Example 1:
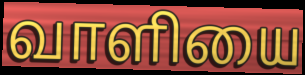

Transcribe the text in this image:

வாளியை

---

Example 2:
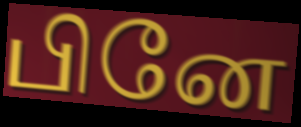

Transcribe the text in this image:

பினே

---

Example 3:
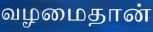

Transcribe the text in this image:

வழமைதான்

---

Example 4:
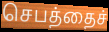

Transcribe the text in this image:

செபத்தைச்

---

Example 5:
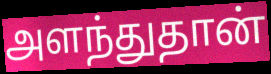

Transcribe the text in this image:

அளந்துதான்